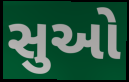
સુઓ